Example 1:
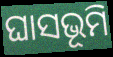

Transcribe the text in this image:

ଘାସଭୂମି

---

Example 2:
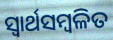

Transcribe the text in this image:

ସ୍ଵାର୍ଥସମ୍ବଳିତ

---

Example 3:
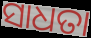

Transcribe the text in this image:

ସାଧତା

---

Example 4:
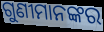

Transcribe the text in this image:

ଗୁଣୀମାନଙ୍କର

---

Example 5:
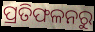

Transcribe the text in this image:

ପ୍ରତିଫଳନରୁ